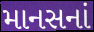
માનસનાં